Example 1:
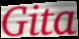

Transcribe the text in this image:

Gita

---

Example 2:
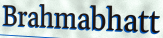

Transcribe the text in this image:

Brahmabhatt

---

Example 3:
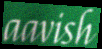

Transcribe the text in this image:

aavish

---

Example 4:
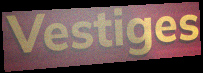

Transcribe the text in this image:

Vestiges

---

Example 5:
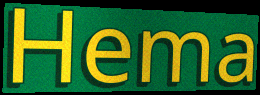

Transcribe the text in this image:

Hema